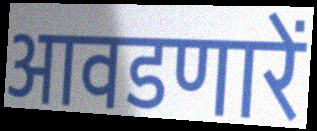
आवडणारें